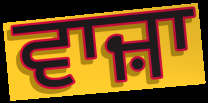
ਵਾਜ਼ਾ